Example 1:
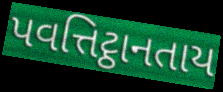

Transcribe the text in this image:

પવત્તિટ્ઠાનતાય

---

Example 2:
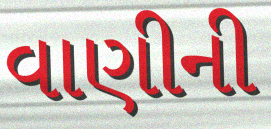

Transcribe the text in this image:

વાણીની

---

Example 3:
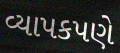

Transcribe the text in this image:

વ્યાપકપણે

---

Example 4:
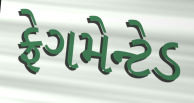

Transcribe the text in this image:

ફ્રેગમેન્ટેડ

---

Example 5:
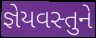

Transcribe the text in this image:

જ્ઞેયવસ્તુને